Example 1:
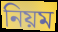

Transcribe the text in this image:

নিয়ম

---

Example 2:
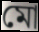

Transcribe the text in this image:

মো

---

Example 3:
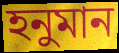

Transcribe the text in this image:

হনুমান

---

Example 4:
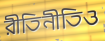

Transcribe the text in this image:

রীতিনীতিও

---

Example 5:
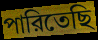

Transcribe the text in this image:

পারিতেছি